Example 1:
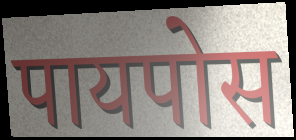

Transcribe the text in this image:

पायपोस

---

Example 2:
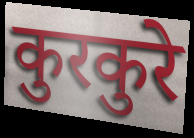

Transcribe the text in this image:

कुरकुरे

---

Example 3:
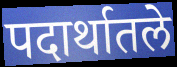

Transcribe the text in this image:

पदार्थातले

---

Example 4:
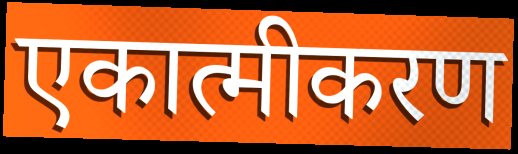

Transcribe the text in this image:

एकात्मीकरण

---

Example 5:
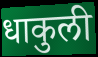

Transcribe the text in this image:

धाकुली